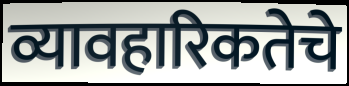
व्यावहारिकतेचे